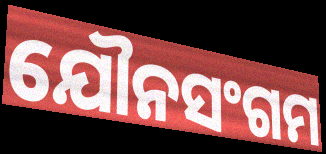
ଯୌନସଂଗମ